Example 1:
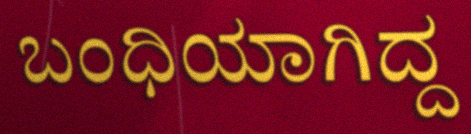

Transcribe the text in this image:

ಬಂಧಿಯಾಗಿದ್ದ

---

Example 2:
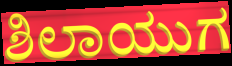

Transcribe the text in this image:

ಶಿಲಾಯುಗ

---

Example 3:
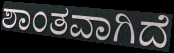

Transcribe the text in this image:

ಶಾಂತವಾಗಿದೆ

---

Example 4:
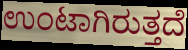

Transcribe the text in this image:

ಉಂಟಾಗಿರುತ್ತದೆ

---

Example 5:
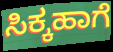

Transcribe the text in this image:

ಸಿಕ್ಕಹಾಗೆ